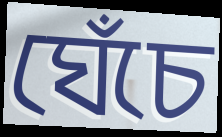
ঘেঁচে